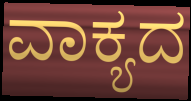
ವಾಕ್ಯದ